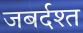
जबर्दश्त